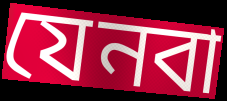
যেনবা